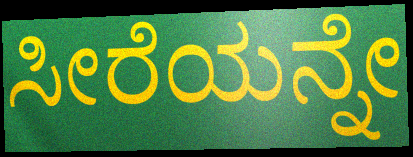
ಸೀರೆಯನ್ನೇ